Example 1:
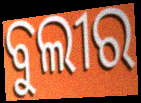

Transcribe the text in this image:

ବୁଲୀର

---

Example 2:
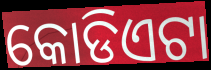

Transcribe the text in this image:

କୋଡିଏଟା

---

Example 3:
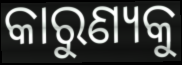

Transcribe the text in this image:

କାରୁଣ୍ୟକୁ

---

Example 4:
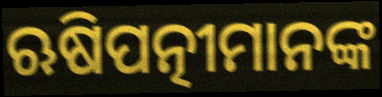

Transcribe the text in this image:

ଋଷିପତ୍ନୀମାନଙ୍କ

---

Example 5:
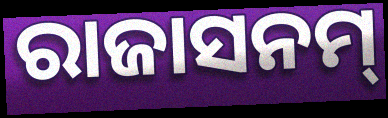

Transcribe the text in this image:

ରାଜାସନମ୍